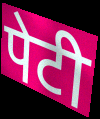
पेटी